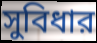
সুবিধার